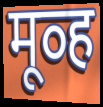
मूव्ह